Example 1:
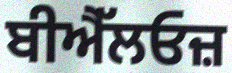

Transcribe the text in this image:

ਬੀਐੱਲਓਜ਼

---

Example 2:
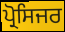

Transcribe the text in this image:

ਪ੍ਰੋਸਿਜਰ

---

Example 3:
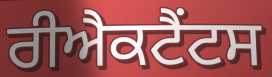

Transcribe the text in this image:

ਰੀਐਕਟੈਂਟਸ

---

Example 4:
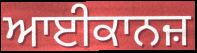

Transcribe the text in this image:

ਆਈਕਾਨਜ਼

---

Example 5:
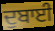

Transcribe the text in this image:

ਦੁਬਾਈ